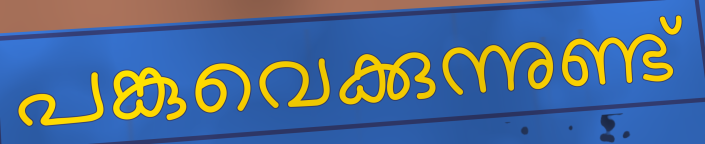
പങ്കുവെക്കുന്നുണ്ട്